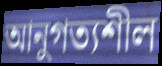
আনুগত্যশীল